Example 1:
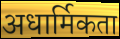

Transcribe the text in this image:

अधार्मिकता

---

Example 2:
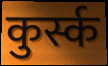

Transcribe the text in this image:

कुर्स्क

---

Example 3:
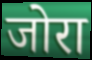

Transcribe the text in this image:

जोरा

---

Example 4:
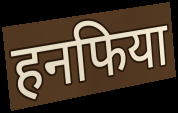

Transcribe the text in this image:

हनफिया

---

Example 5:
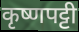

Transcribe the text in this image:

कृष्णपट्टी